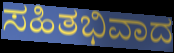
ಸಹಿತಭಿವಾದ